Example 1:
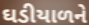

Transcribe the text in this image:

ઘડીયાળને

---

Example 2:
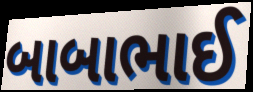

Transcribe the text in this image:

બાબાભાઈ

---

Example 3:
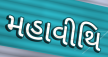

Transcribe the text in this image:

મહાવીથિ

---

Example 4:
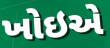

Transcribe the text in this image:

ખોઇએ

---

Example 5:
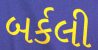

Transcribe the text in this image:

બર્કલી